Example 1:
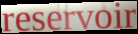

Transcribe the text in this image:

reservoir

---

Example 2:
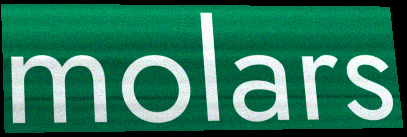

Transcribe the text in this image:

molars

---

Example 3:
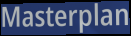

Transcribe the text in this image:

Masterplan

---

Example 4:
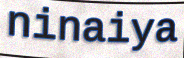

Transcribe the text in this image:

ninaiya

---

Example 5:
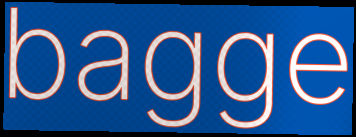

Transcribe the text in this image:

bagge